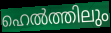
ഹെൽത്തിലും